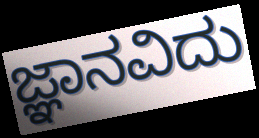
ಜ್ಞಾನವಿದು